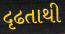
દૃઢતાથી